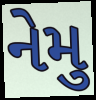
નેમુ